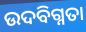
ଉଦବିଗ୍ନତା